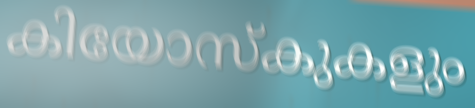
കിയോസ്കുകളും